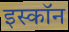
इस्कॉन